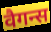
वैगन्स